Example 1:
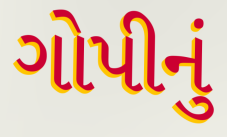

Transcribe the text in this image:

ગોપીનું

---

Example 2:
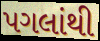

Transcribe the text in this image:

પગલાંથી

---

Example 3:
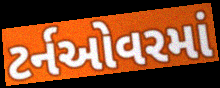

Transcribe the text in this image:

ટર્નઓવરમાં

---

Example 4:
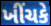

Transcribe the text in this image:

ખીંચકે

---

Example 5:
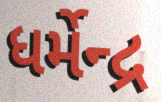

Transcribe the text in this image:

ધર્મેન્દ્ર